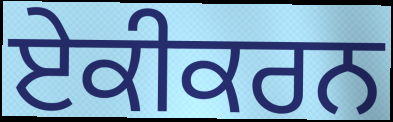
ਏਕੀਕਰਨ